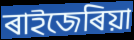
ৰাইজেৰিয়া